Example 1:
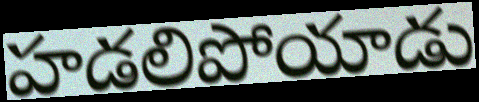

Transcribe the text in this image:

హడలిపోయాడు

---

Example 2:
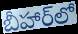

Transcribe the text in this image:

బీహార్‌లో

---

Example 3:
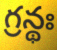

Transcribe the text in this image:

గ్రన్థః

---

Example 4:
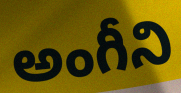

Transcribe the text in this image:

అంగీని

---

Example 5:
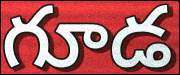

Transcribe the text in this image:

గూడ